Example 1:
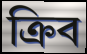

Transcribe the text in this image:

ক্রিব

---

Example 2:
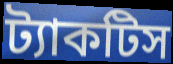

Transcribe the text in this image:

ট্যাকটিস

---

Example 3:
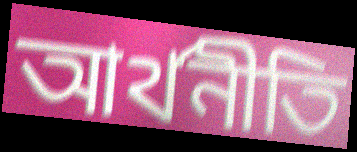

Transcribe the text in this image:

আর্থনীতি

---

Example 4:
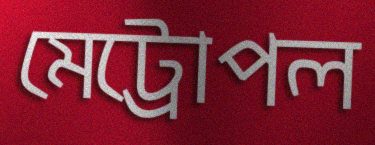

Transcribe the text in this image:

মেট্রোপল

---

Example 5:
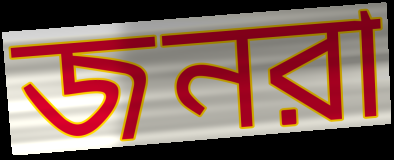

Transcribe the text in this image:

জনরা